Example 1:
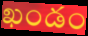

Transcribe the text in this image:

ఖండం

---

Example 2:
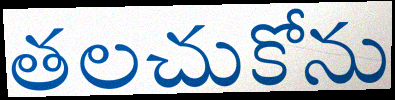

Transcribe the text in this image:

తలచుకోను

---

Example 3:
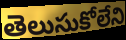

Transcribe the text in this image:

తెలుసుకోలేని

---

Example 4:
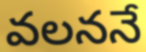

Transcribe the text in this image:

వలననే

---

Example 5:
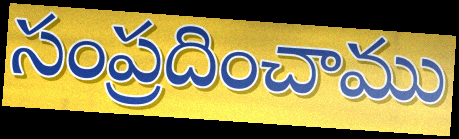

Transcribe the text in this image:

సంప్రదించాము